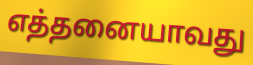
எத்தனையாவது